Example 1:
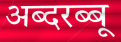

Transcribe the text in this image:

अब्दरब्बू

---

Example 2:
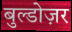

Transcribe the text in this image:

बुल्डोज़र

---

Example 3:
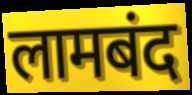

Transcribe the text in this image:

लामबंद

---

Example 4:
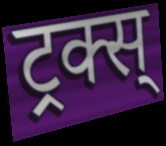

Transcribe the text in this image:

ट्रक्स्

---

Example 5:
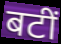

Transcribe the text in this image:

बटीं